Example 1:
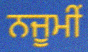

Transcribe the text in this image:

ਨਜੂਮੀਂ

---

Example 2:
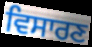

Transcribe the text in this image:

ਵਿਸਾਰਣ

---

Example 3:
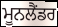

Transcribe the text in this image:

ਮੂਨਲੈਂਡਰ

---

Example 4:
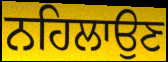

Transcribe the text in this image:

ਨਹਿਲਾਉਣ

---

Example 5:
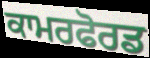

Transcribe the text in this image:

ਕਾਮਰਫੋਰਡ